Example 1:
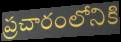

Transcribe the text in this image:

ప్రచారంలోనికి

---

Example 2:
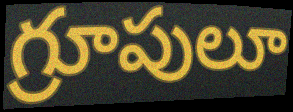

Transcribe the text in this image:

గ్రూపులూ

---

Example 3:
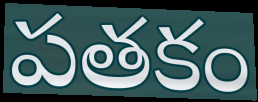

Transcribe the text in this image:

పతకం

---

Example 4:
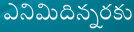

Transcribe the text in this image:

ఎనిమిదిన్నరకు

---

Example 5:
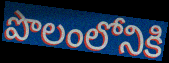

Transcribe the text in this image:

పొలంలోనికి